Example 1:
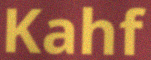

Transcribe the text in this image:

Kahf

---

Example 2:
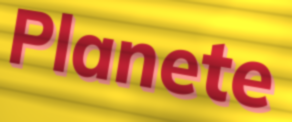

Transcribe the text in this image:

Planete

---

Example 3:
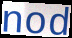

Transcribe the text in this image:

nod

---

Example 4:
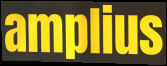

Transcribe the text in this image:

amplius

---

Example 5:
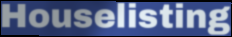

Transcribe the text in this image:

Houselisting